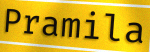
Pramila